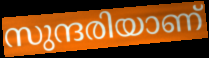
സുന്ദരിയാണ്